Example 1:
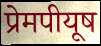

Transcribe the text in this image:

प्रेमपीयूष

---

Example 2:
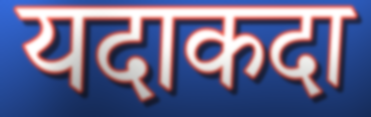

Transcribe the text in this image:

यदाकदा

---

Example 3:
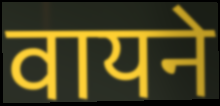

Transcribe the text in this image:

वायने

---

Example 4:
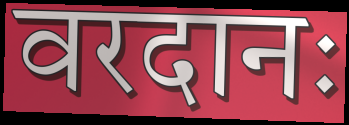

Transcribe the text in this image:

वरदानः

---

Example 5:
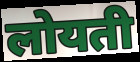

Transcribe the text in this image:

लोयती